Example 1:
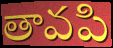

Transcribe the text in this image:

తావపి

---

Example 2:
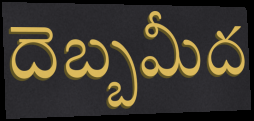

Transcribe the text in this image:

దెబ్బమీద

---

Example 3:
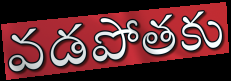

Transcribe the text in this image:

వడపోతకు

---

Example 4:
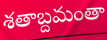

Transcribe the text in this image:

శతాబ్దమంతా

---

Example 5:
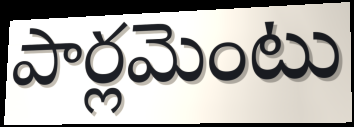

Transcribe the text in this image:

పార్లమెంటు